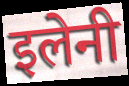
इलेनी